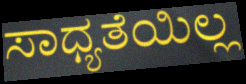
ಸಾಧ್ಯತೆಯಿಲ್ಲ